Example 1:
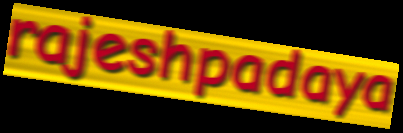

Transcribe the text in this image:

rajeshpadaya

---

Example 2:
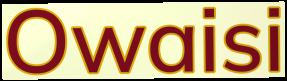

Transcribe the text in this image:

Owaisi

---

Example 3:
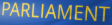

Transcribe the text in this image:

PARLIAMENT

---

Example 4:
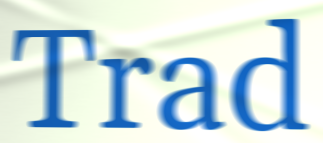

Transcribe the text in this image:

Trad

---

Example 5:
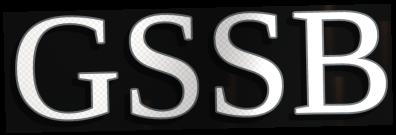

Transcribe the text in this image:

GSSB